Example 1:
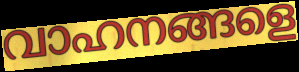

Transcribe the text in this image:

വാഹനങ്ങളെ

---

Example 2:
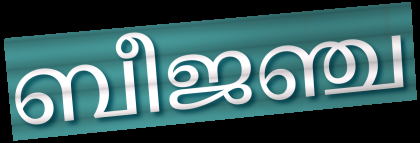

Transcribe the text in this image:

ബീജഞ്ച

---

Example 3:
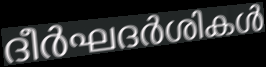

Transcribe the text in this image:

ദീർഘദർശികൾ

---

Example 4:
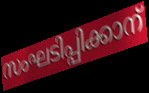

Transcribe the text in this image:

സംഘടിപ്പിക്കാന്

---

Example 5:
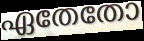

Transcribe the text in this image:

ഏതേതോ